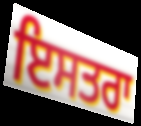
ਇਸਤਰਾ